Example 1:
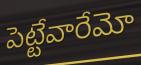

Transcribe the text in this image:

పెట్టేవారేమో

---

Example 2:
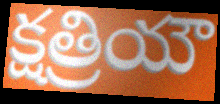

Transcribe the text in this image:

క్షత్రియౌ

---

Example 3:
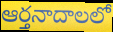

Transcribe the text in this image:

ఆర్తనాదాలలో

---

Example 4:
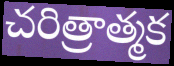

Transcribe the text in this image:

చరిత్రాత్మక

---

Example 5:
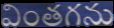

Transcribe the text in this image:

వింతగను